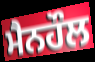
ਮੈਨਹੌਲ